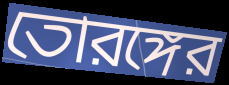
তোরঙ্গের